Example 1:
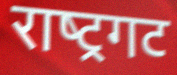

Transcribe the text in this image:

राष्ट्रगट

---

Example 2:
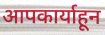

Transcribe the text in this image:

आपकार्याहून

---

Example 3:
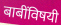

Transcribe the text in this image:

बाबींविषयी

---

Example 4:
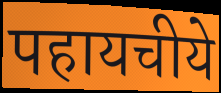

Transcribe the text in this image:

पहायचीये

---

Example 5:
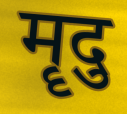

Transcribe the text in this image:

मॄदु